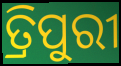
ତ୍ରିପୁରୀ